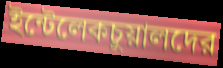
ইন্টেলেকচুয়ালদের